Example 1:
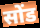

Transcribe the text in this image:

सोंड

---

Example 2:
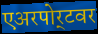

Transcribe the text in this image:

एअरपोर्टवर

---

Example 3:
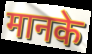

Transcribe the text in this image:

मानके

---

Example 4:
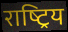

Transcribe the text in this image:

राष्ट्रिय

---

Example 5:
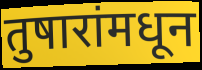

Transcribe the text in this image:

तुषारांमधून